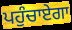
ਪਹੁੰਚਾਏਗਾ